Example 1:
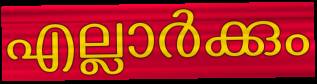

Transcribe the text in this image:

എല്ലാർക്കും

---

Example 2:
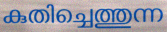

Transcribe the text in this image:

കുതിച്ചെത്തുന്ന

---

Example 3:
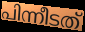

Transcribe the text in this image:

പിന്നീടത്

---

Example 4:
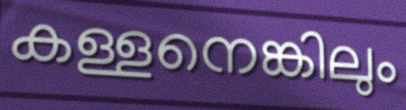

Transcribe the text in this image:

കള്ളനെങ്കിലും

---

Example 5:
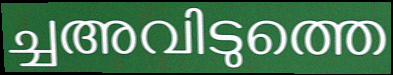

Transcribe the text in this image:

ച്ചഅവിടുത്തെ